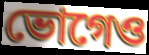
ভোগেও